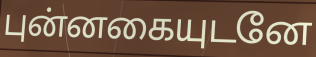
புன்னகையுடனே